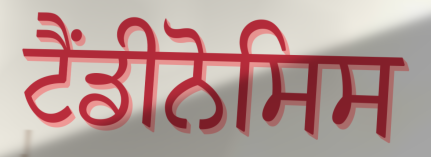
ਟੈਂਡੀਨੋਸਿਸ